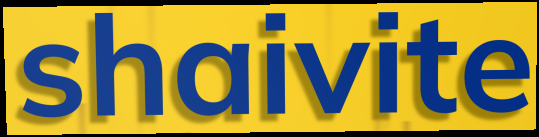
shaivite